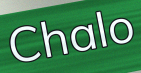
Chalo